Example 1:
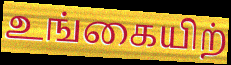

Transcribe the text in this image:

உங்கையிற்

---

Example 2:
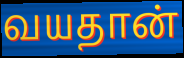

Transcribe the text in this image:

வயதான்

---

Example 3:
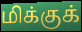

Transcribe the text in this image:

மிக்குக்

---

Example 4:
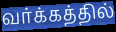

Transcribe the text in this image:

வர்க்கத்தில்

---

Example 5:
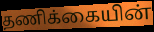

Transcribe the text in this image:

தணிக்கையின்